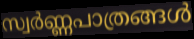
സ്വർണ്ണപാത്രങ്ങൾ